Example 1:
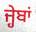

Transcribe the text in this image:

ਜ੍ਹੇਬਾਂ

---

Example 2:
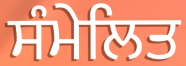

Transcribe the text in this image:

ਸੰਮੇਲਿਤ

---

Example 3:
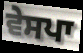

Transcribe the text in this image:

ਵੇਸਪਾ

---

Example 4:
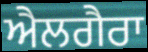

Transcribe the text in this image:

ਐਲਗੈਰਾ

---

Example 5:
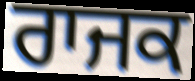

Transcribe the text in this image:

ਰਾਜਕ